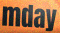
mday